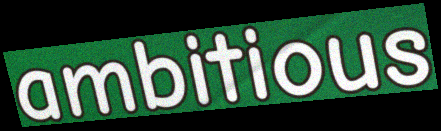
ambitious